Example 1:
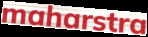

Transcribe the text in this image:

maharstra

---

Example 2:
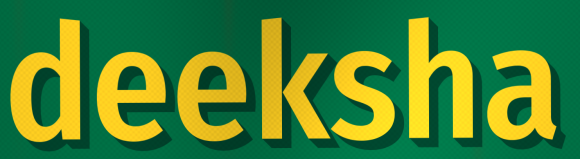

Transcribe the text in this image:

deeksha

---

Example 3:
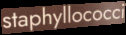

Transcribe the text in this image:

staphyllococci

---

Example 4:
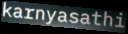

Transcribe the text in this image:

karnyasathi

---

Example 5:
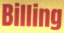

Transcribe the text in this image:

Billing